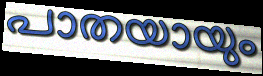
പാതയായും